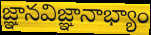
జ్ఞానవిజ్ఞానాభ్యాం